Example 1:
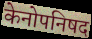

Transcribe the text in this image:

केनोपनिषद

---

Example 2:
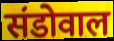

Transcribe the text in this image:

संडोवाल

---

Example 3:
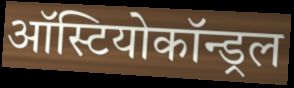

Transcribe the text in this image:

ऑस्टियोकॉन्ड्रल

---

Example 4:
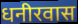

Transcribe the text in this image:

धनीरवास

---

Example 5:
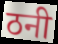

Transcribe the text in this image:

ठनी